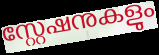
സ്റ്റേഷനുകളും